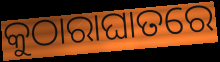
କୁଠାରାଘାତରେ